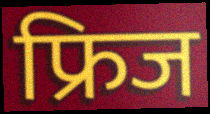
फ्रिज